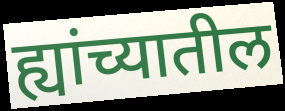
ह्यांच्यातील